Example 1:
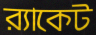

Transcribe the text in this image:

র‍্যাকেট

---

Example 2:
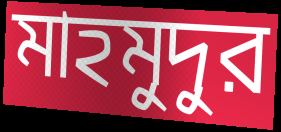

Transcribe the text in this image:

মাহমুদুর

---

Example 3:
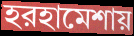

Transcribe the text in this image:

হরহামেশায়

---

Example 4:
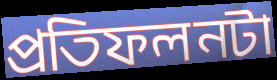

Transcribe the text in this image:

প্রতিফলনটা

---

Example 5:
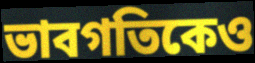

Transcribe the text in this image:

ভাবগতিকেও